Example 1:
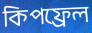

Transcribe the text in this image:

কিপফ্রেল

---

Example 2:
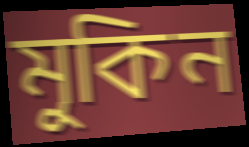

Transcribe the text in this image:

মুকিন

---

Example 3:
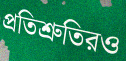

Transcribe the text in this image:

প্রতিশ্রুতিরও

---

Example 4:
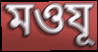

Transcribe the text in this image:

মওযূ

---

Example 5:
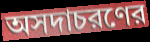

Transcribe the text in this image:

অসদাচরণের